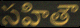
సహితౌ